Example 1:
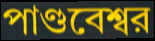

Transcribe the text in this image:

পাণ্ডবেশ্বর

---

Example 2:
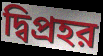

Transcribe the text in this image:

দ্বিপ্রহর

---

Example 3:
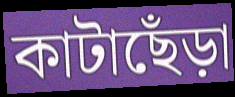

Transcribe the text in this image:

কাটাছেঁড়া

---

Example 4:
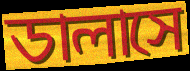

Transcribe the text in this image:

ডালাসে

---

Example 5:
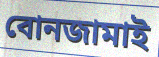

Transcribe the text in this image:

বোনজামাই